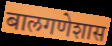
बालगणेशास